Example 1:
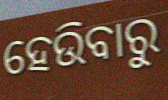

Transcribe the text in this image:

ହେଉିବାରୁ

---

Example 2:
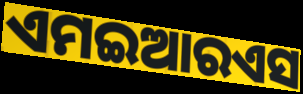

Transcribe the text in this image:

ଏମଇଆରଏସ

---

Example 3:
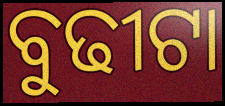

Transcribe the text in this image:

ବୁଢୀଟା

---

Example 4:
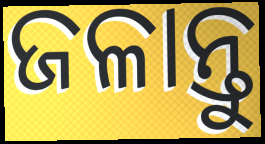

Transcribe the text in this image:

ଜଳାନ୍ତୁ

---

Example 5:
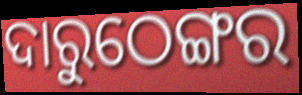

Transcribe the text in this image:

ଦାରୁଠେଙ୍ଗର